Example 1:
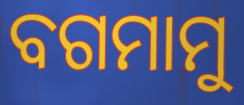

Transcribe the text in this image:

ବଗମାମୁ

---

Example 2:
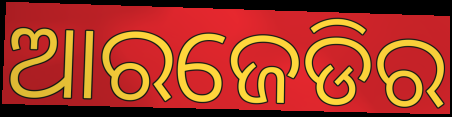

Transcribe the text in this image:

ଆରଜେଡିର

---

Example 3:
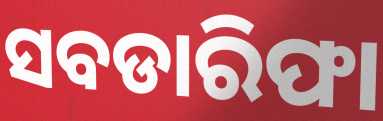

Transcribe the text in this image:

ସବଡାରିଫା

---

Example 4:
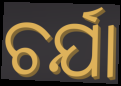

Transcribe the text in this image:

ଚର୍ଯା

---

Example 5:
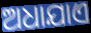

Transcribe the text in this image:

ଅଧାଯାଏ